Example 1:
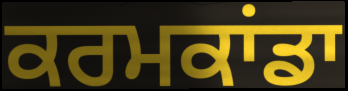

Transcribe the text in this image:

ਕਰਮਕਾਂਡਾ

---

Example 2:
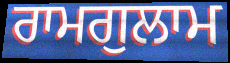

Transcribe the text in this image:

ਰਾਮਗੁਲਾਮ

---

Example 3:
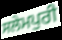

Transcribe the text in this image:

ਸਲੇਮਪੁਰੀ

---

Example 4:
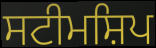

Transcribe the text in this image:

ਸਟੀਮਸ਼ਿਪ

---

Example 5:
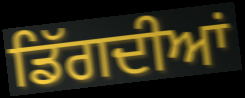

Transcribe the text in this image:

ਡਿੱਗਦੀਆਂ